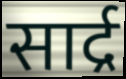
सार्द्र